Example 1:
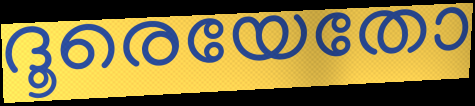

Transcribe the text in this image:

ദൂരെയേതോ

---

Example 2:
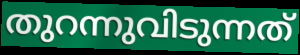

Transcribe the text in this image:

തുറന്നുവിടുന്നത്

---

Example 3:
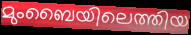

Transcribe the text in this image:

മുംബൈയിലെത്തിയ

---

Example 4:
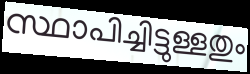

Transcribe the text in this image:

സ്ഥാപിച്ചിട്ടുള്ളതും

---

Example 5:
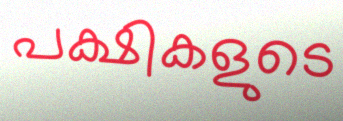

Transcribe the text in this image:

പക്ഷികളുടെ